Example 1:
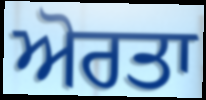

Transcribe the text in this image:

ਅੋਰਤਾ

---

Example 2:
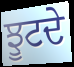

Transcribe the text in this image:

ਝੂਟਦੇ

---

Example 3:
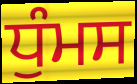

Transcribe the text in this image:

ਧੁੰਮਸ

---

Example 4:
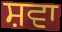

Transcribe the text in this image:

ਸ਼ਵਾ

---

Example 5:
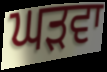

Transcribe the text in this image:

ਘੜਵਾ